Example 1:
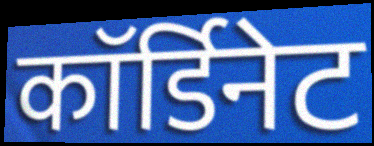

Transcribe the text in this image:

कॉर्डिनेट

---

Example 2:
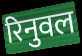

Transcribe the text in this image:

रिनुवल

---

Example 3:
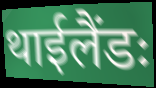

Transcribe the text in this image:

थाईलैंडः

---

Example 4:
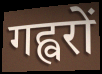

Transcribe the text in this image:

गह्वरों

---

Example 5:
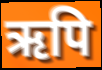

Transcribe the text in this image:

ऋपि